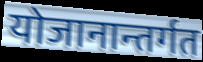
योजानान्तर्गत